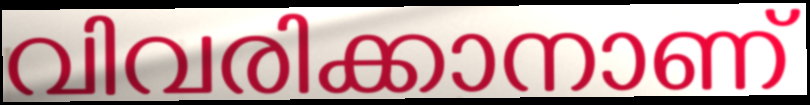
വിവരിക്കാനാണ്